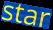
star